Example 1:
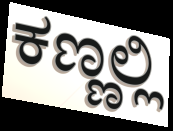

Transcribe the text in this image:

ಕಣ್ಣಲ್ಲಿ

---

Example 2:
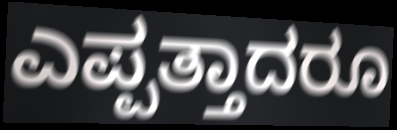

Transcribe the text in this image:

ಎಪ್ಪತ್ತಾದರೂ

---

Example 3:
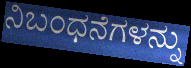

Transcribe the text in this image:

ನಿಬಂಧನೆಗಳನ್ನು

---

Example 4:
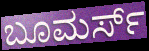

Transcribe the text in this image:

ಬೂಮರ್ಸ್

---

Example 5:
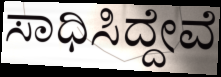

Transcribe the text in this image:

ಸಾಧಿಸಿದ್ದೇವೆ